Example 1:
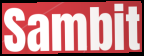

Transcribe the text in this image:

Sambit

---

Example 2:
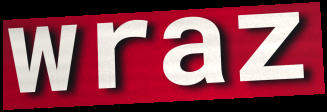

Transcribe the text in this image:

wraz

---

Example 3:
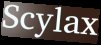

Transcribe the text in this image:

Scylax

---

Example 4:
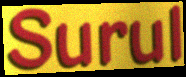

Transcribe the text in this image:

Surul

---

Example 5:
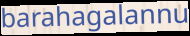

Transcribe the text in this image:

barahagalannu